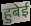
हुबेई